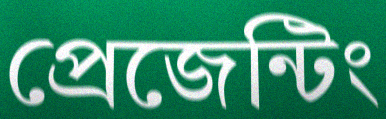
প্রেজেন্টিং